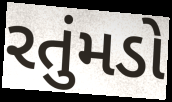
રતુંમડો